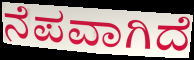
ನೆಪವಾಗಿದೆ